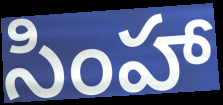
సింహా